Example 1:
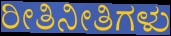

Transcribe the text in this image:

ರೀತಿನೀತಿಗಳು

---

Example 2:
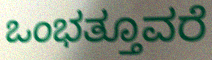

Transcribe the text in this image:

ಒಂಭತ್ತೂವರೆ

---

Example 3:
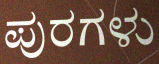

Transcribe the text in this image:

ಪುರಗಳು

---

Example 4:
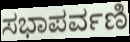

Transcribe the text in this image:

ಸಭಾಪರ್ವಣಿ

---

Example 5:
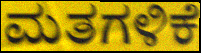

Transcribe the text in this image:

ಮತಗಳಿಕೆ